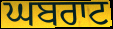
ਘਬਰਾਟ